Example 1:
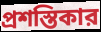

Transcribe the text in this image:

প্রশস্তিকার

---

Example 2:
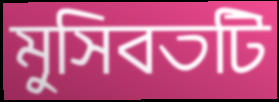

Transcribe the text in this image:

মুসিবতটি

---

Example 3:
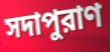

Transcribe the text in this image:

সদাপুরাণ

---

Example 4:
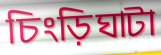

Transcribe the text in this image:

চিংড়িঘাটা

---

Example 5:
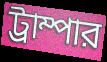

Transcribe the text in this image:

ট্রাম্পার